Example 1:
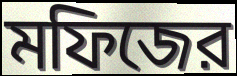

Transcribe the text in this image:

মফিজের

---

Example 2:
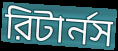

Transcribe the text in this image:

রিটার্নস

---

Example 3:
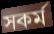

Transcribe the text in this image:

সকর্ম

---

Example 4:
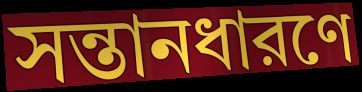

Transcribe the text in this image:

সন্তানধারণে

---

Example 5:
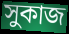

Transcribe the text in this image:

সুকাজ